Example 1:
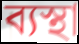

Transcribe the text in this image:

ব্যস্থা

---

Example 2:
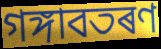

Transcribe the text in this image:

গঙ্গাবতৰণ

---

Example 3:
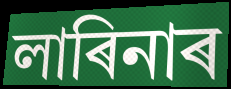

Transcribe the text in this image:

লাৰিনাৰ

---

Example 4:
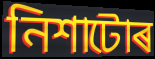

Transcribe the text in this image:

নিশাটোৰ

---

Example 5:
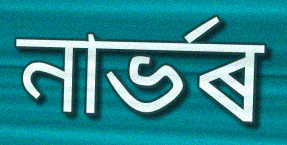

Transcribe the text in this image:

নাৰ্ভৰ